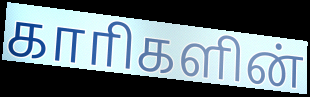
காரிகளின்